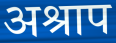
अश्राप